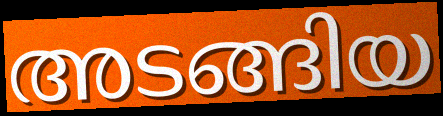
അടങ്ങിയ